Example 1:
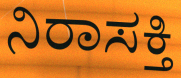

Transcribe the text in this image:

ನಿರಾಸಕ್ತಿ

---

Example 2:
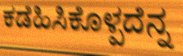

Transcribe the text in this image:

ಕಡೆಹಿಸಿಕೊಳ್ಪದೆನ್ನ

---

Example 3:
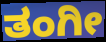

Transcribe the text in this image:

ತಂಗೀ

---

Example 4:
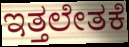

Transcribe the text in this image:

ಇತ್ತಲೇತಕೆ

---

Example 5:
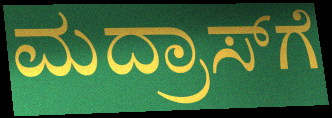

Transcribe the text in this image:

ಮದ್ರಾಸ್‍ಗೆ